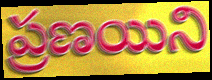
ప్రణయిని